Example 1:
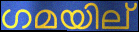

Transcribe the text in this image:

ഗമയില്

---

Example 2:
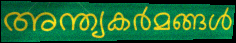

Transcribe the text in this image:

അന്ത്യകർമങ്ങൾ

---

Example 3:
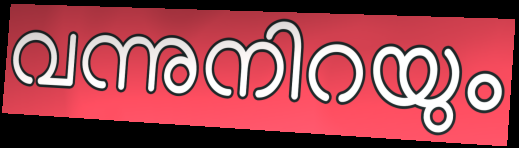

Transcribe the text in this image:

വന്നുനിറയും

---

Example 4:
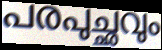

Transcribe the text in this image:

പരപുച്ഛവും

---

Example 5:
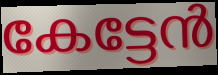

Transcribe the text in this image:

കേട്ടേൻ